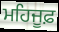
ਮਹਿਜੂਫ਼